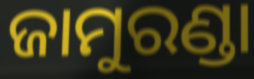
ଜାମୁରଣ୍ଡା